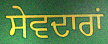
ਸੇਵਦਾਰਾਂ